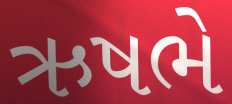
ઋષભે